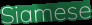
Siamese